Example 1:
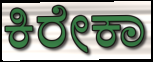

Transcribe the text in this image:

ಕಿರೇಕಾ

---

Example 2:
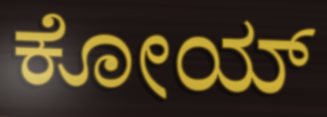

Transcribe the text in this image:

ಕೋಯ್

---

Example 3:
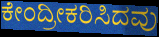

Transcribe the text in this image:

ಕೇಂದ್ರೀಕರಿಸಿದವು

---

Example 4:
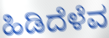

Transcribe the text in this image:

ಹಿಡಿದೆಳೆವ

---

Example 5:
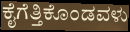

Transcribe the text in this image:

ಕೈಗೆತ್ತಿಕೊಂಡವಳು